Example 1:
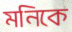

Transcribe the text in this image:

মনিকে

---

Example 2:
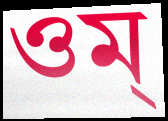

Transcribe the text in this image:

ওম্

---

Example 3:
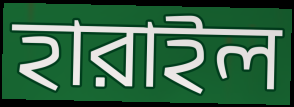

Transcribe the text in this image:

হারাইল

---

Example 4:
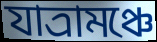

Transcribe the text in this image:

যাত্রামঞ্চে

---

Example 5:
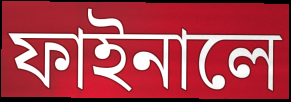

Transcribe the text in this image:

ফাইনালে